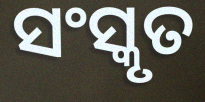
ସଂସ୍କୃତ